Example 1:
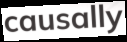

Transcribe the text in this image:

causally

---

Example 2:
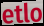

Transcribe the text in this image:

etlo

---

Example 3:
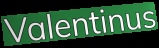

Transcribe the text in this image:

Valentinus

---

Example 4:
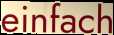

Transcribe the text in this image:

einfach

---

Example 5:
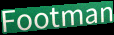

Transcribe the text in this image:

Footman